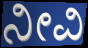
ನೀವಿ